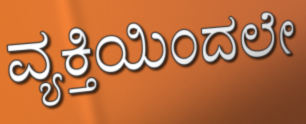
ವ್ಯಕ್ತಿಯಿಂದಲೇ